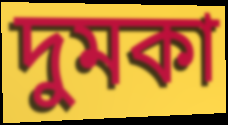
দুমকা